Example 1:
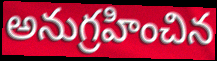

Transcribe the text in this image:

అనుగ్రహించిన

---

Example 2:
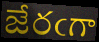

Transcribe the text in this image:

జేరఁగా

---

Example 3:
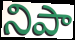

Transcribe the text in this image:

నిపా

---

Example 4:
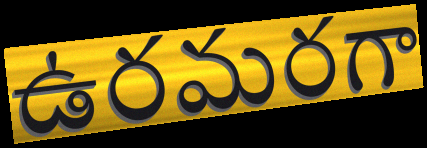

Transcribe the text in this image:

ఉరమరగా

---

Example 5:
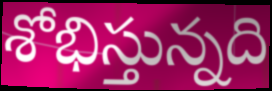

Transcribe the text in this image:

శోభిస్తున్నది